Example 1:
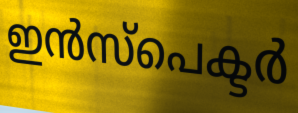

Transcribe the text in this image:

ഇൻസ്പെക്ടർ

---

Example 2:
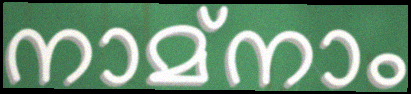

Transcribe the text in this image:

നാമ്നാം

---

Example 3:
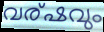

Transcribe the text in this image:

വര്ഷവും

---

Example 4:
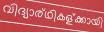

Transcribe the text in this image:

വിദ്യാര്ഥികള്ക്കായി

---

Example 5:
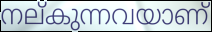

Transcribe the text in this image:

നല്കുന്നവയാണ്